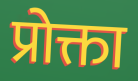
प्रोक्ता